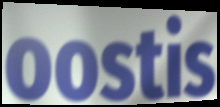
oostis